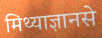
मिथ्याज्ञानसे